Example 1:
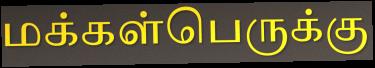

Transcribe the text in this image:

மக்கள்பெருக்கு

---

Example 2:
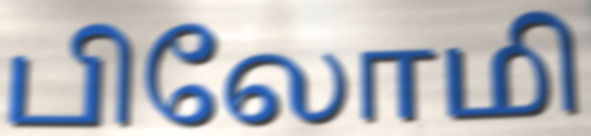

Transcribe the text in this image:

பிலோமி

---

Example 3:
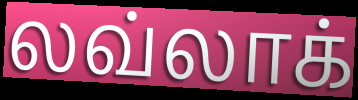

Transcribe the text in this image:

லவ்லாக்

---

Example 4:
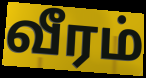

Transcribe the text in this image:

வீரம்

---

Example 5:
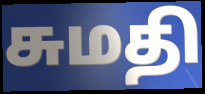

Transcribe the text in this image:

சுமதி